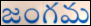
జంగమ